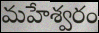
మహేశ్వరం